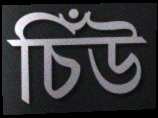
চিঁউ